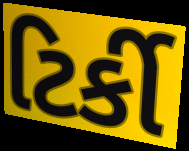
ટિર્કી